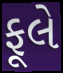
ફૂલે